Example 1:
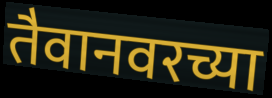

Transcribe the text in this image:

तैवानवरच्या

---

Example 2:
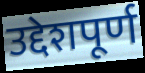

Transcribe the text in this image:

उद्देशपूर्ण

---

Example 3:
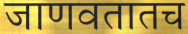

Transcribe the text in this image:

जाणवतातच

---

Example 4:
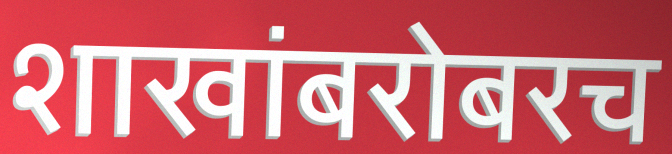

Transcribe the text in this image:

शाखांबरोबरच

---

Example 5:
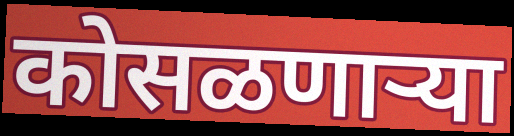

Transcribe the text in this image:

कोसळणार्‍या